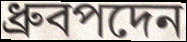
ধ্রুবপদেন